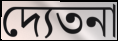
দ্যেতনা